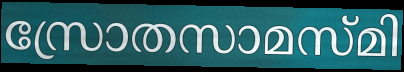
സ്രോതസാമസ്മി